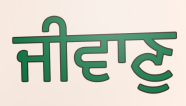
ਜੀਵਾਣੁ